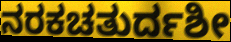
ನರಕಚತುರ್ದಶೀ